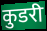
कुडरी